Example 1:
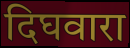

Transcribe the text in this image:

दिघवारा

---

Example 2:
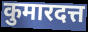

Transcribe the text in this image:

कुमारदत्त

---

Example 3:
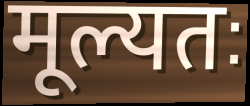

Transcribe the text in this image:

मूल्यतः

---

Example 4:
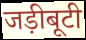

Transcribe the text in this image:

जड़ीबूटी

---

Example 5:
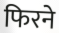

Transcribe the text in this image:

फिरने